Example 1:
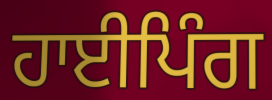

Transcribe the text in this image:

ਹਾਈਪਿੰਗ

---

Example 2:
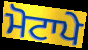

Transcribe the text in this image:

ਮੋਟਾਪੇ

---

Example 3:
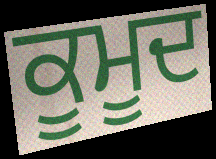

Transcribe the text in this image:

ਕੂਮੂਦ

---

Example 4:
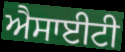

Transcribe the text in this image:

ਐਸਾਈਟੀ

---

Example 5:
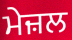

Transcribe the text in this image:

ਮੇਜ਼ਲ